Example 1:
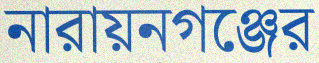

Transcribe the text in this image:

নারায়নগঞ্জের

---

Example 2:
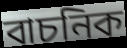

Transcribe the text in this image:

বাচনিক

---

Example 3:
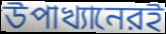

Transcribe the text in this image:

উপাখ্যানেরই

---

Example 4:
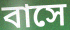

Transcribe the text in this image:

বাসে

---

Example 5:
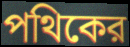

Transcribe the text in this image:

পথিকের